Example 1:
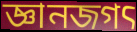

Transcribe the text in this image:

জ্ঞানজগৎ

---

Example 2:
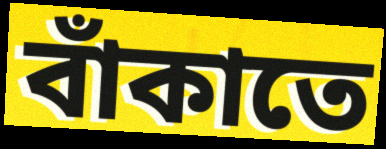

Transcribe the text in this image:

বাঁকাতে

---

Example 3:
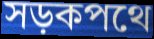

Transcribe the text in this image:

সড়কপথে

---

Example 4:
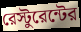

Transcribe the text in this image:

রেস্টুরেন্টের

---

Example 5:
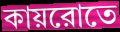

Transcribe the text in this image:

কায়রোতে